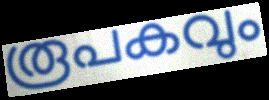
രൂപകവും